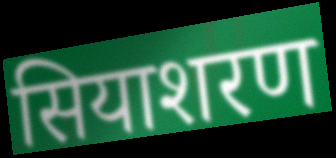
सियाशरण